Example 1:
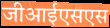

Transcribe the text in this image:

जीआईएसएस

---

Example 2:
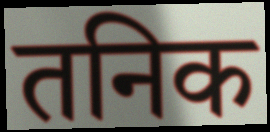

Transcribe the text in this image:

तनिक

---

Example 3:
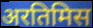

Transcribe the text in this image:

अरतिमिस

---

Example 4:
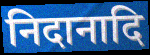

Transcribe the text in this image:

निदानादि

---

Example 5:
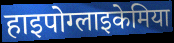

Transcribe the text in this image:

हाइपोग्लाइकेमिया